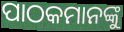
ପାଠକମାନଙ୍କୁ